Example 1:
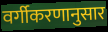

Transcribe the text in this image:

वर्गीकरणानुसार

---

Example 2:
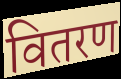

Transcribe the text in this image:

वितरण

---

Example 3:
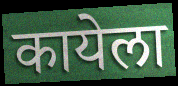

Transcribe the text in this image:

कायेला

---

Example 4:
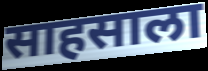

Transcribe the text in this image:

साहसाला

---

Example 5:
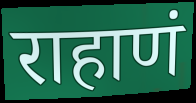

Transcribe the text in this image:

राहाणं